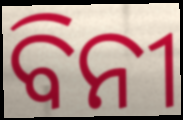
ବିନୀ